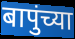
बापुंच्या